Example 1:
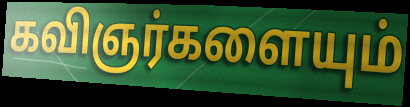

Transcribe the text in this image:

கவிஞர்களையும்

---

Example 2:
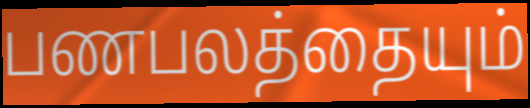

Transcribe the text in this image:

பணபலத்தையும்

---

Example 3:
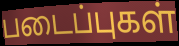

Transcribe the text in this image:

படைப்புகள்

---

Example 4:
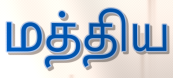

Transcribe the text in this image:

மத்திய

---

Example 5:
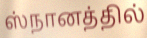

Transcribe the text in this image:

ஸ்நானத்தில்